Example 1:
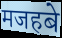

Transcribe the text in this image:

मजहबे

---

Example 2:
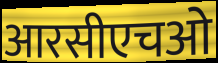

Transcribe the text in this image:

आरसीएचओ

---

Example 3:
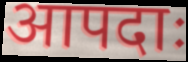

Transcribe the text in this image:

आपदाः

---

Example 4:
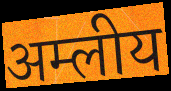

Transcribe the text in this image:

अम्लीय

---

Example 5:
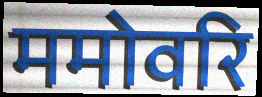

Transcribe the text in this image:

ममोवरि